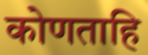
कोणताहि